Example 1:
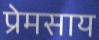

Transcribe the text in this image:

प्रेमसाय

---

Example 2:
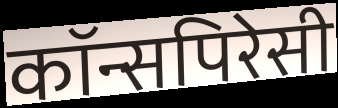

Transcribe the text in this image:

कॉन्सपिरेसी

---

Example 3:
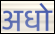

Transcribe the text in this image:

अधो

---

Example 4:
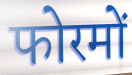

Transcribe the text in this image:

फोरमों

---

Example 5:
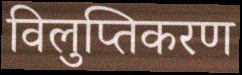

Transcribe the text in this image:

विलुप्तिकरण